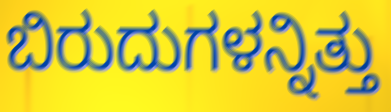
ಬಿರುದುಗಳನ್ನಿತ್ತು